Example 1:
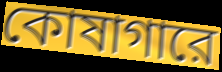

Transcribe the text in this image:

কোষাগারে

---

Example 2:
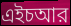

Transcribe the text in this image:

এইচআর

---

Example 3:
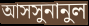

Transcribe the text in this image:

আসসুনানুল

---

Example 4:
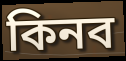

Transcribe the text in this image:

কিনব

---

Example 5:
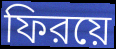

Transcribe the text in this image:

ফিরয়ে